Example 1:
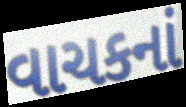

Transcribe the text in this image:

વાચકનાં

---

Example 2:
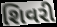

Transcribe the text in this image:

શિવરી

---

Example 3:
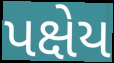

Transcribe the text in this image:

પક્ષેય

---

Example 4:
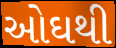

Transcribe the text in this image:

ઓઘથી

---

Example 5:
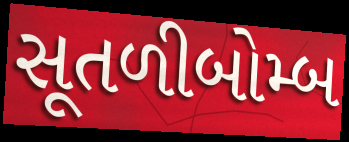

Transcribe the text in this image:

સૂતળીબોમ્બ